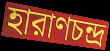
হারাণচন্দ্র